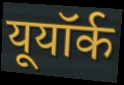
यूयॉर्क